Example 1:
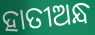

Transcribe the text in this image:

ହାତୀଅନ୍ଧ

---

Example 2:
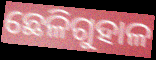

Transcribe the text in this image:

ଛେଳିଗୁହାଳ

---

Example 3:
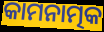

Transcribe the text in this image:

କାମନାତ୍ମକ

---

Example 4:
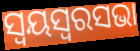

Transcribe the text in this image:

ସ୍ୱୟସ୍ୱରସଭା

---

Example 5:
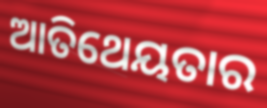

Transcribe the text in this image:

ଆତିଥେୟତାର